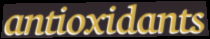
antioxidants